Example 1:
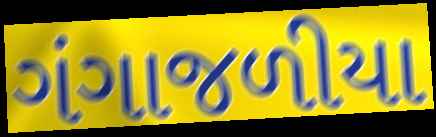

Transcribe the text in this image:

ગંગાજળીયા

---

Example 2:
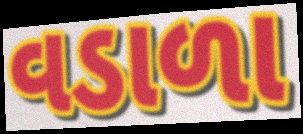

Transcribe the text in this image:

વડાળા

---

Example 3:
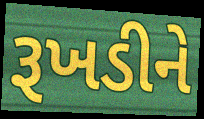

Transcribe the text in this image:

રૂખડીને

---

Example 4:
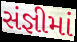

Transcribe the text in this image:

સંજ્ઞીમાં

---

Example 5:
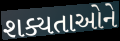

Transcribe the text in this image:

શક્યતાઓને